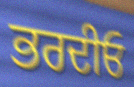
ਭਰਦੀਓ